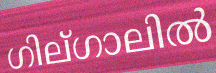
ഗില്ഗാലിൽ